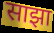
साझा